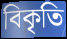
বিকৃতি